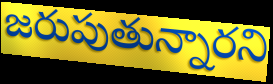
జరుపుతున్నారని